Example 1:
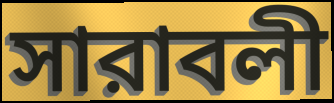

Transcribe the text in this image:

সারাবলী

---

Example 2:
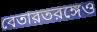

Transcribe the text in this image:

বেতারতরঙ্গেও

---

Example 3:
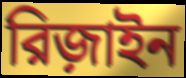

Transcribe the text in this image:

রিজ়াইন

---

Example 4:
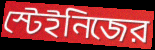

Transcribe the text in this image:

স্টেইনিজের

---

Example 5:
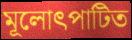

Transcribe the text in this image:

মূলোৎপাটিত